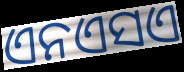
ଏନଏସଏ